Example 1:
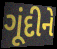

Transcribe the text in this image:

ગૂંદીને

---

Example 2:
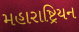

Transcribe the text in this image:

મહારાષ્ટ્રિયન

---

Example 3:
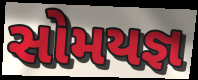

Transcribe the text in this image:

સોમયજ્ઞ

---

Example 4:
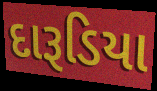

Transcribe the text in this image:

દારૂડિયા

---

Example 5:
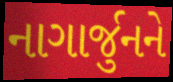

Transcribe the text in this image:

નાગાર્જુનને